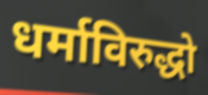
धर्माविरुद्धो